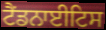
ਟੈਂਡਨਾਈਟਿਸ